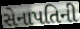
સેનાપતિની